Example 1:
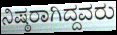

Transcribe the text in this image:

ನಿಷ್ಠರಾಗಿದ್ದವರು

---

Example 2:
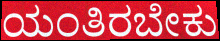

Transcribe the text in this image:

ಯಂತಿರಬೇಕು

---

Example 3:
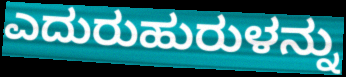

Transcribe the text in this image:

ಎದುರುಹುರುಳನ್ನು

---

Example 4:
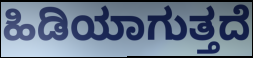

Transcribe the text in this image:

ಹಿಡಿಯಾಗುತ್ತದೆ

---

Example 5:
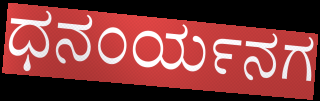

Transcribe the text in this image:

ಧನಂರ್ಯನಗ